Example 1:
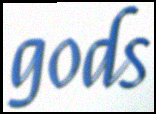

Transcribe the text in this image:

gods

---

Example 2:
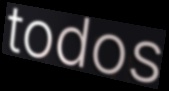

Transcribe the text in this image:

todos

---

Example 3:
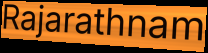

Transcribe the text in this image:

Rajarathnam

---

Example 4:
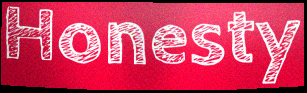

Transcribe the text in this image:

Honesty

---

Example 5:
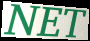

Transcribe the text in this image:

NET